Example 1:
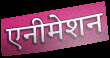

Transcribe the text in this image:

एनीमेशन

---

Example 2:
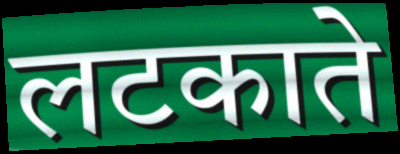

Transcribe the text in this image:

लटकाते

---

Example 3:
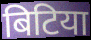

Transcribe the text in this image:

बिटिया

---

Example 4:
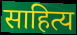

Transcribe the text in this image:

साहित्य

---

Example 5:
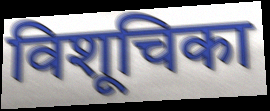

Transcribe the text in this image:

विशूचिका